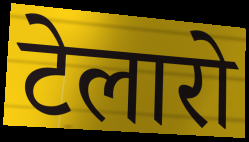
टेलारो